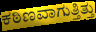
ಕಠಿಣವಾಗುತ್ತಿತ್ತು